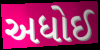
અધોઈ